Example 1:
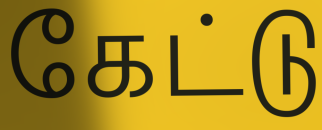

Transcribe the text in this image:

கேட்டு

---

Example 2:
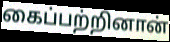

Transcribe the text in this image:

கைப்பற்றினான்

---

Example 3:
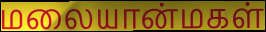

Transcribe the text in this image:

மலையான்மகள்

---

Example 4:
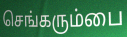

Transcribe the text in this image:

செங்கரும்பை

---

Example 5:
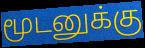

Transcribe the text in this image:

மூடனுக்கு